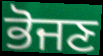
ਭੋਜਣ